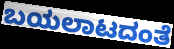
ಬಯಲಾಟದಂತೆ